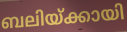
ബലിയ്ക്കായി